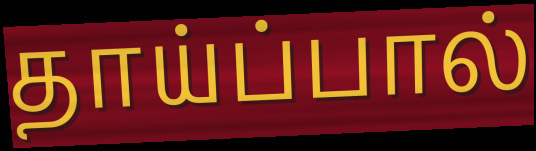
தாய்ப்பால்